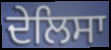
ਦੇਲਿਸਾ